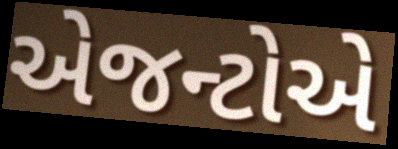
એજન્ટોએ